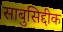
साबुसिद्दीक